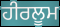
ਹੀਰਲੂਮ